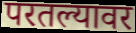
परतल्यावर